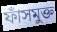
ফাঁসমুক্ত